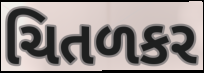
ચિતળકર